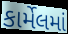
કાર્મેલમાં